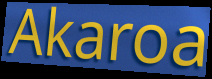
Akaroa